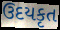
ઉદયકૃત